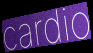
cardio